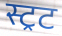
स्ट्रट